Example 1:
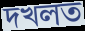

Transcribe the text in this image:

দখলত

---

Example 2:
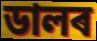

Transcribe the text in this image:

ডালৰ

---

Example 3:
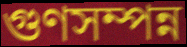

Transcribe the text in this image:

গুণসম্পন্ন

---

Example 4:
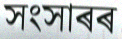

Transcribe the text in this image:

সংসাৰৰ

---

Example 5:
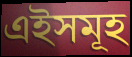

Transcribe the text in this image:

এইসমূহ